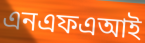
এনএফএআই